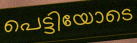
പെട്ടിയോടെ